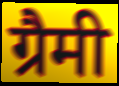
ग्रैमी